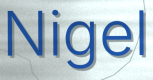
Nigel